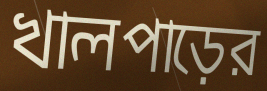
খালপাড়ের